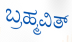
ಬ್ರಹ್ಮವಿತ್